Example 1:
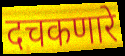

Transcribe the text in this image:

दचकणारे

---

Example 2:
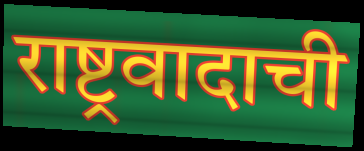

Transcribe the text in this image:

राष्ट्रवादाची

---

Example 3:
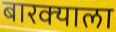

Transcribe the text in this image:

बारक्याला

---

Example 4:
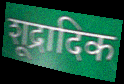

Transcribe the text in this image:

शूद्रादिक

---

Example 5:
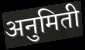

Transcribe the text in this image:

अनुमिती